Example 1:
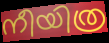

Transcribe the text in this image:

നീയിത്ര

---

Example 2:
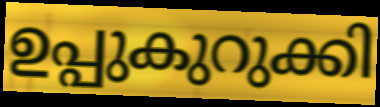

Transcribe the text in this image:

ഉപ്പുകുറുക്കി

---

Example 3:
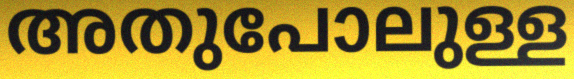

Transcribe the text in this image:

അതുപോലുള്ള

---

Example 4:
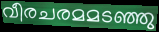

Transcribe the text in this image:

വീരചരമമടഞ്ഞു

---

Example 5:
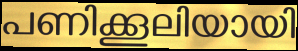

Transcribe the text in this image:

പണിക്കൂലിയായി